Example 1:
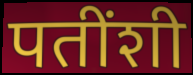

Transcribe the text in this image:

पतींशी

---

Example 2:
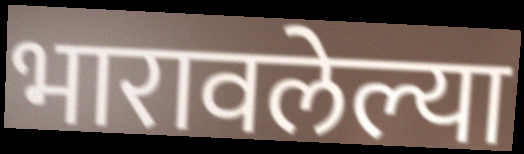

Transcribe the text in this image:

भारावलेल्या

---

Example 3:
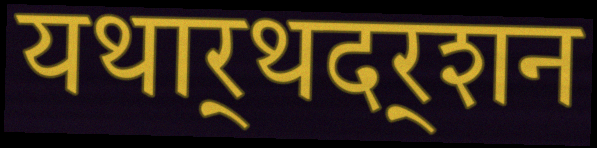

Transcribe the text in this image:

यथार्थदर्शन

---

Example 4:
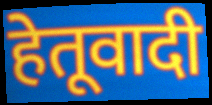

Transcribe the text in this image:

हेतूवादी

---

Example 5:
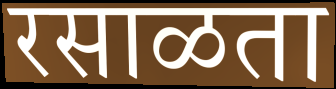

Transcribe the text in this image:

रसाळता